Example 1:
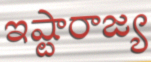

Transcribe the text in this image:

ఇష్టారాజ్య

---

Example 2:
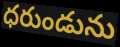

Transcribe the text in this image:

ధరుండును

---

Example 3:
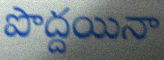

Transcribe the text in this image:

పొద్దయినా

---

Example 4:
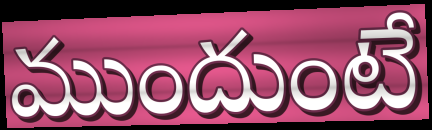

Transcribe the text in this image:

ముందుంటే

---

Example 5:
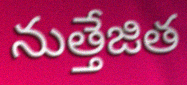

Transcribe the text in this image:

నుత్తేజిత